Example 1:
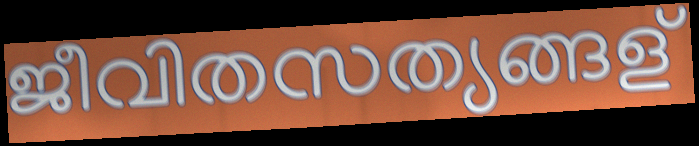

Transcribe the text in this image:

ജീവിതസത്യങ്ങള്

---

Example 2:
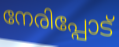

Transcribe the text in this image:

നേരിപ്പോട്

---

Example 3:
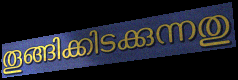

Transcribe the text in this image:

തൂങ്ങിക്കിടക്കുന്നതു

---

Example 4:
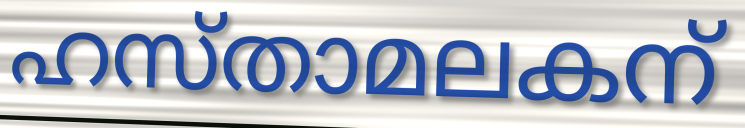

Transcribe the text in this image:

ഹസ്താമലകന്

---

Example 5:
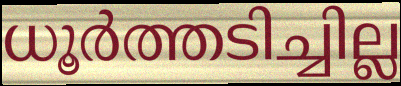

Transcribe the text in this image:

ധൂർത്തടിച്ചില്ല